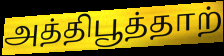
அத்திபூத்தாற்